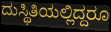
ದುಸ್ಥಿತಿಯಲ್ಲಿದ್ದರೂ